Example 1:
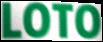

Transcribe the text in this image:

LOTO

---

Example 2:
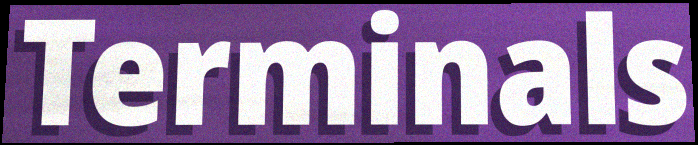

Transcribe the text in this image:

Terminals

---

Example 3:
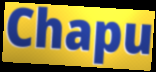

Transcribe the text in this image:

Chapu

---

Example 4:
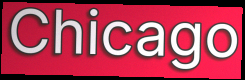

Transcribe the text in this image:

Chicago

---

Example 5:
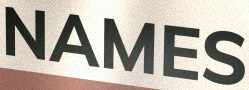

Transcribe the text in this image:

NAMES